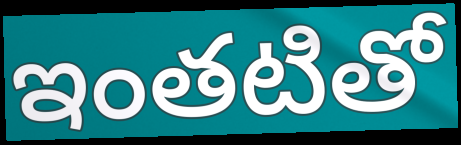
ఇంతటితో